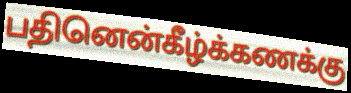
பதினென்கீழ்க்கணக்கு